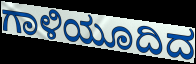
ಗಾಳಿಯೂದಿದ